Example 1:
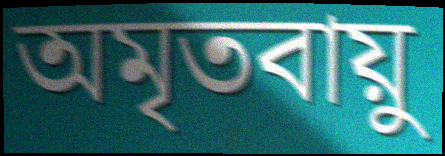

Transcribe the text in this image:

অমৃতবায়ু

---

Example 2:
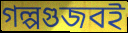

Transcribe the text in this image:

গল্পগুজবই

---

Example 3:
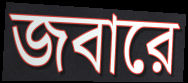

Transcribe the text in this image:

জবারে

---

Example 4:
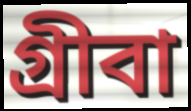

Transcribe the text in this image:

গ্রীবা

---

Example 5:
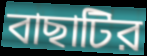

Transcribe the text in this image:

বাছাটির